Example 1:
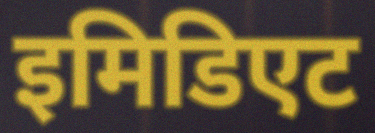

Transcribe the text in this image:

इमिडिएट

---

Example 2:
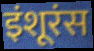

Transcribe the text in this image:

इंशूरंस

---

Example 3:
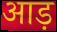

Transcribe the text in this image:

आड़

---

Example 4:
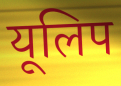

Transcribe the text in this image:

यूलिप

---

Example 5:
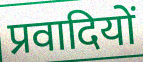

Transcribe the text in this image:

प्रवादियों